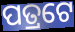
ପତ୍ରଟେ